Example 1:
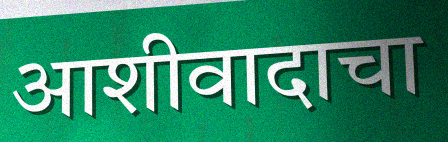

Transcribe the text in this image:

आशीवादाचा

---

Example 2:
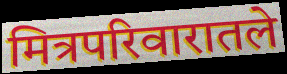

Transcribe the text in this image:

मित्रपरिवारातले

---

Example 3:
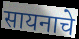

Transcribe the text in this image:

सायनाचे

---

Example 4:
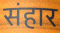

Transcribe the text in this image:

संहार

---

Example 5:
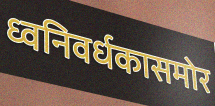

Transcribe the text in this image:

ध्वनिवर्धकासमोर